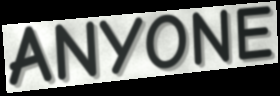
ANYONE